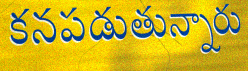
కనపడుతున్నారు